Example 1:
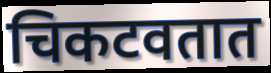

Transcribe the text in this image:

चिकटवतात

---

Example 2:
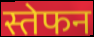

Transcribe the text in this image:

स्तेफन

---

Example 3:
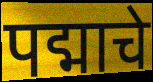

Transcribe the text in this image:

पद्माचे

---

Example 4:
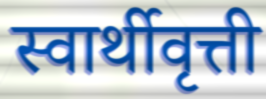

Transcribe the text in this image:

स्वार्थीवृत्ती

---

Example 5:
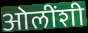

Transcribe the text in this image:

ओलींशी